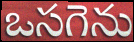
ఒసగెను